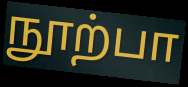
நூற்பா